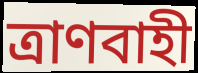
ত্রাণবাহী